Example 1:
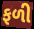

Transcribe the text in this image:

ફળી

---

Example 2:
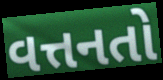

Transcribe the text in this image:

વત્તનતો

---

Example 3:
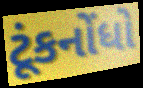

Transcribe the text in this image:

ટૂંકનોંધો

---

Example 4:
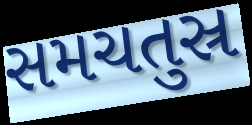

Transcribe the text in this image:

સમચતુસ્ર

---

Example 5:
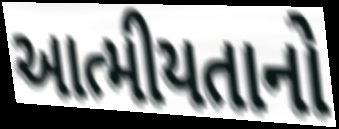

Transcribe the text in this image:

આત્મીયતાનો